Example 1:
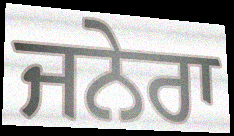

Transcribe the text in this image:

ਜਨੇਰਾ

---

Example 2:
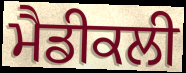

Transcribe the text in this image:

ਮੈਡੀਕਲੀ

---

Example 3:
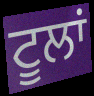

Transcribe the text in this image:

ਟੂਲਾਂ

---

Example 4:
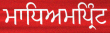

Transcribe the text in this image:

ਮਾਧਿਅਮਪ੍ਰਿੰਟ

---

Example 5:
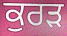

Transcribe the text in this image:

ਕੁਰੜ